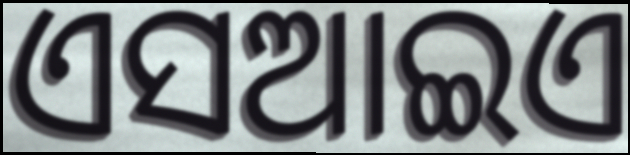
ଏସଆଇଏ